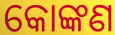
କୋଙ୍କଣ